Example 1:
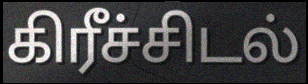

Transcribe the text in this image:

கிரீச்சிடல்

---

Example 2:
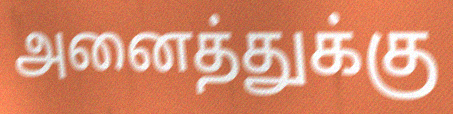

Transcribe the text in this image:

அனைத்துக்கு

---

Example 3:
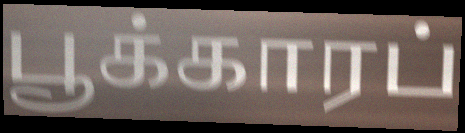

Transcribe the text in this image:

பூக்காரப்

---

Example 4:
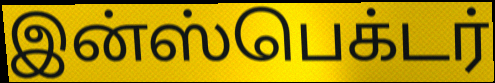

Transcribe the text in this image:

இன்ஸ்பெக்டர்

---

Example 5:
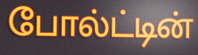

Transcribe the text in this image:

போல்ட்டின்